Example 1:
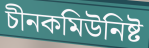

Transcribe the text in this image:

চীনকমিউনিষ্ট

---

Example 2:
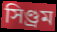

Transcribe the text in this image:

সিণ্ড্ৰম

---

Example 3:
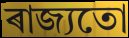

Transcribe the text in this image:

ৰাজ্যতো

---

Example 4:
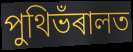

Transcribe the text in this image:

পুথিভঁৰালত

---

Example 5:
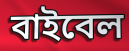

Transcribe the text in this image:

বাইবেল